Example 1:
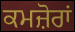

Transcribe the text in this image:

ਕਮਜ਼ੋਰਾਂ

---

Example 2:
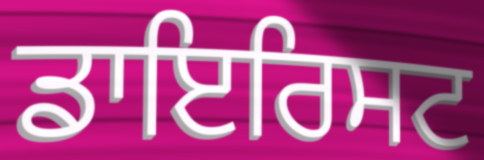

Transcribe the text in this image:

ਡਾਇਰਿਸਟ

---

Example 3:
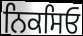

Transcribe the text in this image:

ਨਿਕਸਿਓ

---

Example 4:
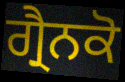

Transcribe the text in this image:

ਗ੍ਰੈਨਕੋ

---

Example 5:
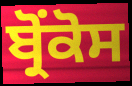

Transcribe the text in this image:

ਬ੍ਰੋਂਕੋਸ